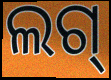
ଲଗ୍